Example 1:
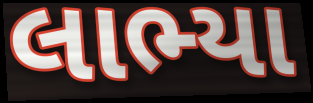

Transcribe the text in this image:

લાભ્યા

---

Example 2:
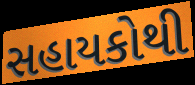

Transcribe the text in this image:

સહાયકોથી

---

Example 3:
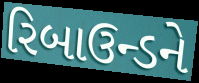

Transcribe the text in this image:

રિબાઉન્ડને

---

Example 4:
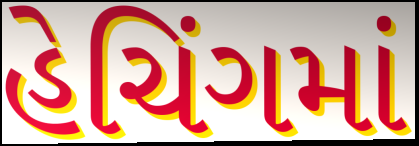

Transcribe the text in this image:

હેચિંગમાં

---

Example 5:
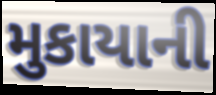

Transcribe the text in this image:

મુકાયાની